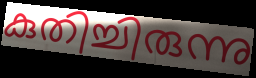
കുതിച്ചിരുന്നു